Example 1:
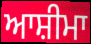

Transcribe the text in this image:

ਆਸ਼ੀਮਾ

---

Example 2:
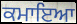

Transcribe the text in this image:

ਕਮਾਇਆ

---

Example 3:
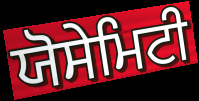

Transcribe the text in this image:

ਯੋਸੇਮਿਟੀ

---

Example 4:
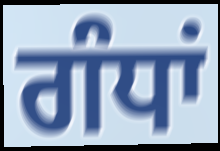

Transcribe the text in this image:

ਗੰਧਾਂ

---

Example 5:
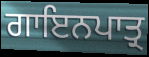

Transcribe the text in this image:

ਗਾਇਨਪਾਤ੍ਰ